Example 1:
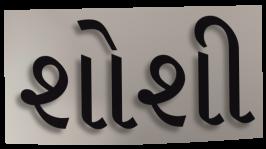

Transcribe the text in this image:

શોશી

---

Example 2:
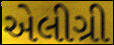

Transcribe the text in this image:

એલીગ્રી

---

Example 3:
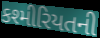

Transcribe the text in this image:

કશ્મીરિયતની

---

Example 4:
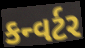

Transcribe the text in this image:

કન્વર્ટર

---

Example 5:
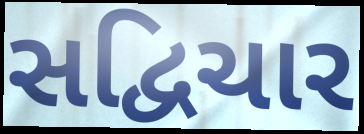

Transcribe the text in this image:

સદ્વિચાર